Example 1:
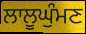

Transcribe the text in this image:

ਲਾਲੂਘੁੰਮਣ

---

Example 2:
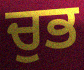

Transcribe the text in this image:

ਚੁਭ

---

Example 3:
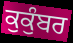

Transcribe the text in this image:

ਕੁਕੁੰਬਰ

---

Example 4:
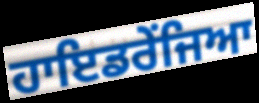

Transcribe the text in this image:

ਹਾਇਡਰੇਂਜਿਆ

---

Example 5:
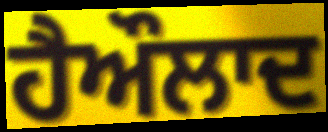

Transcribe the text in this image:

ਹੈਔਲਾਦ